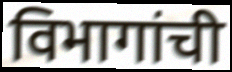
विभागांची